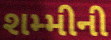
શમ્મીની